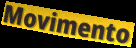
Movimento